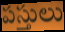
పస్తులు